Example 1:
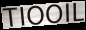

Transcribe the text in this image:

TIOOIL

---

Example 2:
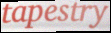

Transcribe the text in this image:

tapestry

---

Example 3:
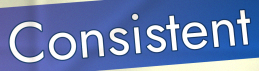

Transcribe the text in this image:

Consistent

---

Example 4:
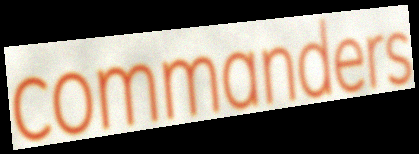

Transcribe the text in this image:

commanders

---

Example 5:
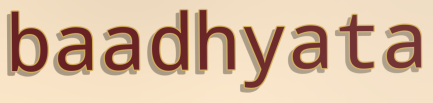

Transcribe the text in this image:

baadhyata